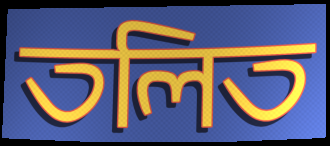
তলিত